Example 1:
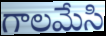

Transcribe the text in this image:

గాలమేసి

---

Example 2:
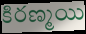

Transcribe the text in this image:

కిరణ్మయి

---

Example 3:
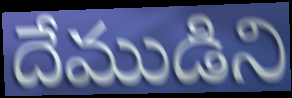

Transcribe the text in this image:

దేముడిని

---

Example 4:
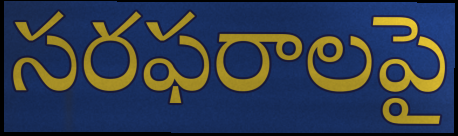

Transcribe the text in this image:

సరఫరాలపై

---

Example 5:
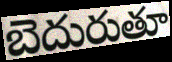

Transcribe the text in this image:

బెదురుతూ